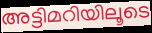
അട്ടിമറിയിലൂടെ